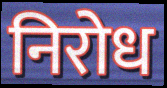
निरोध